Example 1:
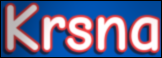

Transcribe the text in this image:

Krsna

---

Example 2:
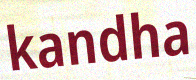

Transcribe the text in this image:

kandha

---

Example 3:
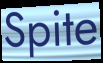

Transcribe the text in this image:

Spite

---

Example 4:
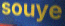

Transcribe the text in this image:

souye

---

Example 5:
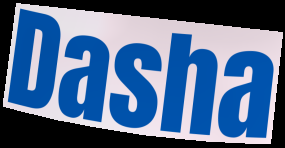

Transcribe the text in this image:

Dasha